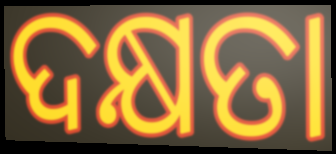
ଦକ୍ଷତା